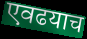
एवढयाच